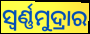
ସ୍ୱର୍ଣ୍ଣମୁଦ୍ରାର